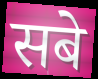
सबे